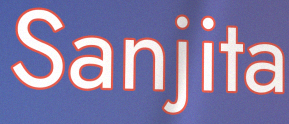
Sanjita